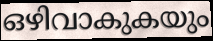
ഒഴിവാകുകയും